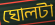
ঘোলটা